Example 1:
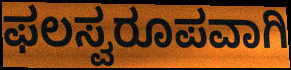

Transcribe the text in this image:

ಫಲಸ್ವರೂಪವಾಗಿ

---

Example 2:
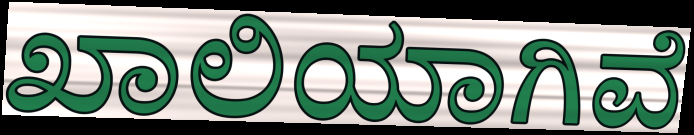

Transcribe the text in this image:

ಖಾಲಿಯಾಗಿವೆ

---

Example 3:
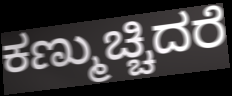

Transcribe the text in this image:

ಕಣ್ಮುಚ್ಚಿದರೆ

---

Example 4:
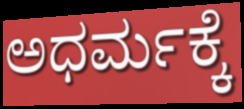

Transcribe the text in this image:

ಅಧರ್ಮಕ್ಕೆ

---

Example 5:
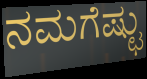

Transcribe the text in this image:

ನಮಗೆಷ್ಟು